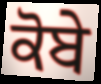
ਕੋਬੇ